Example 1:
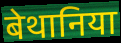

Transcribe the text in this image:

बेथानिया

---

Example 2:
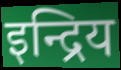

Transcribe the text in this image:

इन्द्रिय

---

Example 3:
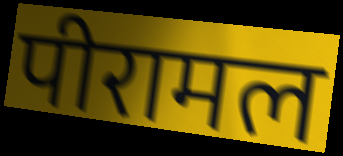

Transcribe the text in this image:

पीरामल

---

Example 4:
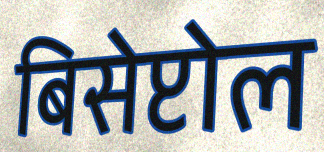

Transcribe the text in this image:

बिसेप्टोल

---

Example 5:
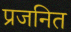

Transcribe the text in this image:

प्रजनित